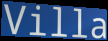
Villa